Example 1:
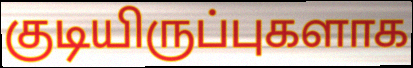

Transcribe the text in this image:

குடியிருப்புகளாக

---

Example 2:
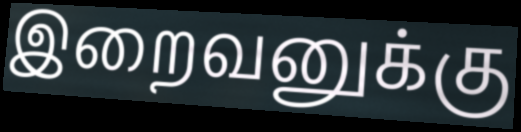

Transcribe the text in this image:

இறைவனுக்கு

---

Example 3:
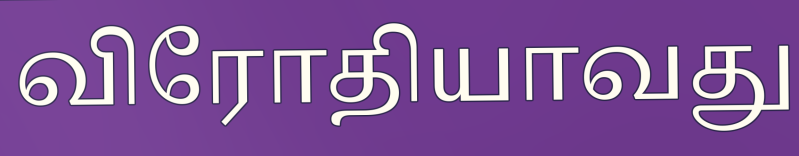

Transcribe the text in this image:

விரோதியாவது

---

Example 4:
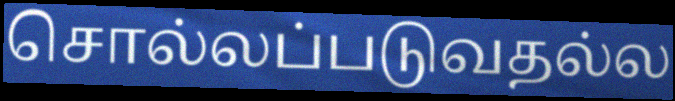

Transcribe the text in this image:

சொல்லப்படுவதல்ல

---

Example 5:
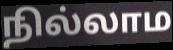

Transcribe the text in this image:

நில்லாம